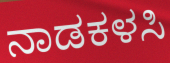
ನಾಡಕಳಸಿ